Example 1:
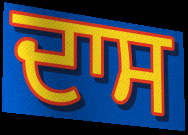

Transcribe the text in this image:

ਦਾਸ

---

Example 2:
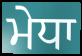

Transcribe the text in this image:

ਮੇਧਾ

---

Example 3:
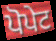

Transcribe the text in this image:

ਪੋਪੇਟ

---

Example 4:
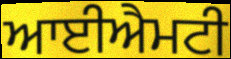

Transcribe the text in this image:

ਆਈਐਮਟੀ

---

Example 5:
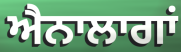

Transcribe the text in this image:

ਐਨਾਲਾਗਾਂ